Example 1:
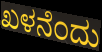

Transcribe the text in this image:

ಖಳನೆಂದು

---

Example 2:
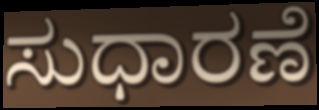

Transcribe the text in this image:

ಸುಧಾರಣೆ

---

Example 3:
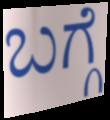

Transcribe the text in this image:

ಬಗ್ಗೆ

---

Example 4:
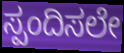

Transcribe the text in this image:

ಸ್ಪಂದಿಸಲೇ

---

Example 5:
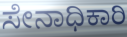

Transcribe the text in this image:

ಸೇನಾಧಿಕಾರಿ